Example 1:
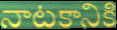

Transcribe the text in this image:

నాటకానికి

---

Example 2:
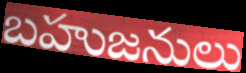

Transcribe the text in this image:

బహుజనులు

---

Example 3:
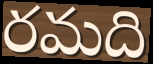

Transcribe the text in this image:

రమది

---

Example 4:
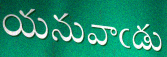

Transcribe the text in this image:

యనువాఁడు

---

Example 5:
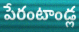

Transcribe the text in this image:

పేరంటాండ్ల